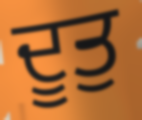
ਦੂਤੁ